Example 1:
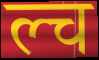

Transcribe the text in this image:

ल्च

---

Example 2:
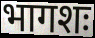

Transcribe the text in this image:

भागशः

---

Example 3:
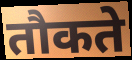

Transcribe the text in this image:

तौकते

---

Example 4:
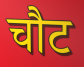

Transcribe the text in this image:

चौट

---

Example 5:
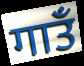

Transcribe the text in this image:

गाउँ